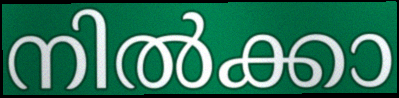
നിൽക്കാ